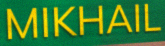
MIKHAIL